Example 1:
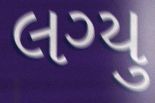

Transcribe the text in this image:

લગ્યુ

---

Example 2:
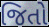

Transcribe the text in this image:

જિતો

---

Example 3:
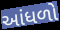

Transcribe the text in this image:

આંધળો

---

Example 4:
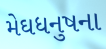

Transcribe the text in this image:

મેઘધનુષના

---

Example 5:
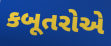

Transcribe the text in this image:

કબૂતરોએ